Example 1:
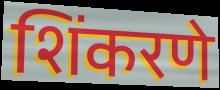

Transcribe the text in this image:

शिंकरणे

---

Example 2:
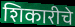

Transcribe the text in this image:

शिकारीचे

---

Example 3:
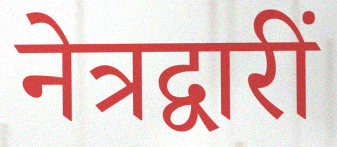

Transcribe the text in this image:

नेत्रद्वारीं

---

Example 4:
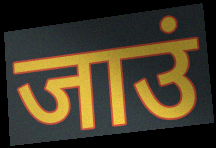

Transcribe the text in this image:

जाउं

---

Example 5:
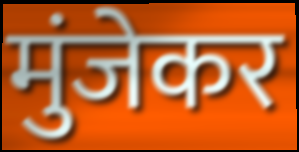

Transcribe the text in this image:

मुंजेकर